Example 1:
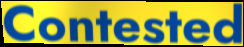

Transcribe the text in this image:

Contested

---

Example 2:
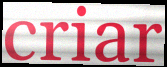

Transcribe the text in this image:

criar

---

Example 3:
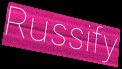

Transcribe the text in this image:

Russify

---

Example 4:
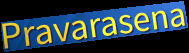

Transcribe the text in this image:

Pravarasena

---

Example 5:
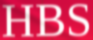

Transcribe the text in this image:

HBS